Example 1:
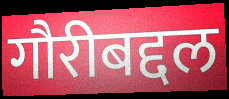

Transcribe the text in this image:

गौरीबद्दल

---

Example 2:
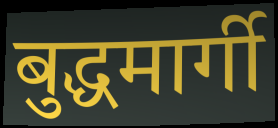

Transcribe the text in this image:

बुद्धमार्गी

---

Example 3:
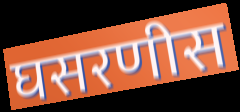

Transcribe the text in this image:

घसरणीस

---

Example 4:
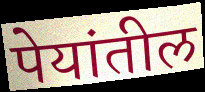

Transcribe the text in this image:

पेयांतील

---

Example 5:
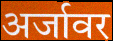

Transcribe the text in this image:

अर्जावर